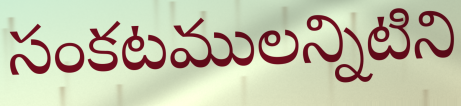
సంకటములన్నిటిని